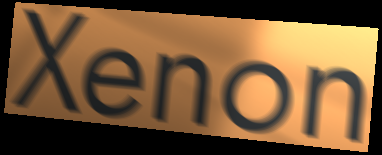
Xenon